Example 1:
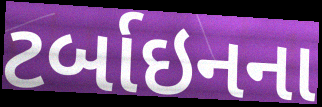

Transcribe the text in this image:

ટર્બાઇનના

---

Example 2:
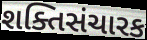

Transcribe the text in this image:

શક્તિસંચારક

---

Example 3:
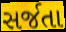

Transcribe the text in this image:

સર્જતા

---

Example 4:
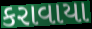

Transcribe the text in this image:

કરાવાયા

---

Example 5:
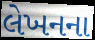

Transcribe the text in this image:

લેખનના